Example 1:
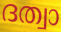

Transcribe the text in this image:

ദത്വാ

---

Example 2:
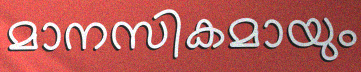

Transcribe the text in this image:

മാനസികമായും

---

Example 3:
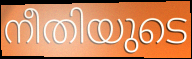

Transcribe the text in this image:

നീതിയുടെ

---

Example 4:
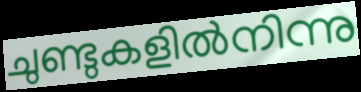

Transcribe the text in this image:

ചുണ്ടുകളിൽനിന്നു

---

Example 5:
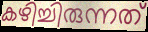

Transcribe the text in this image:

കഴിച്ചിരുന്നത്